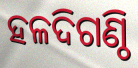
ହଳଦିଗଣ୍ଠି